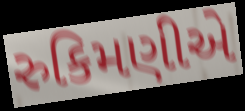
રુકિમણીએ